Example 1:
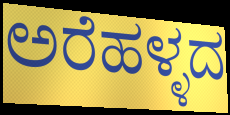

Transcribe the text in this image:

ಅರೆಹಳ್ಳದ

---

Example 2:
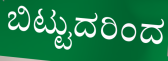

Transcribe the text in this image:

ಬಿಟ್ಟುದರಿಂದ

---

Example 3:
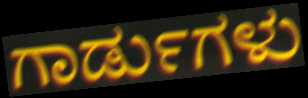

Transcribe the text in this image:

ಗಾರ್ಡುಗಳು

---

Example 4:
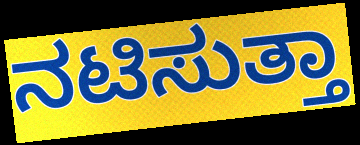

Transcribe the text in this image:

ನಟಿಸುತ್ತಾ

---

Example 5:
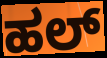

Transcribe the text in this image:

ಹಲ್